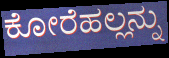
ಕೋರೆಹಲ್ಲನ್ನು